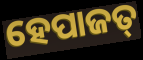
ହେପାଜତ୍